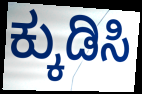
ಕ್ಕುಡಿಸಿ